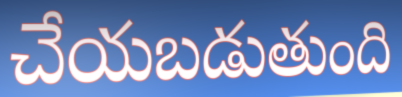
చేయబడుతుంది